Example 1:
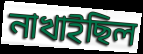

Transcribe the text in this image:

নাখাইছিল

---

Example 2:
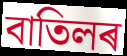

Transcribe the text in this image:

বাতিলৰ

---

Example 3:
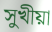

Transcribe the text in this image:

সুখীয়া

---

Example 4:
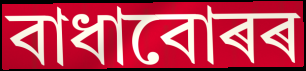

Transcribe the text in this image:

বাধাবোৰৰ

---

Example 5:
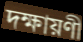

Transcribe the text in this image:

দক্ষায়ণী